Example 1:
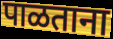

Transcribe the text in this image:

पाळताना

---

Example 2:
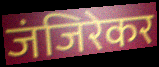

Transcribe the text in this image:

जंजिरेकर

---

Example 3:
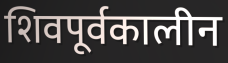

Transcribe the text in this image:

शिवपूर्वकालीन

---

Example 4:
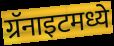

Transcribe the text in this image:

ग्रॅनाइटमध्ये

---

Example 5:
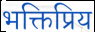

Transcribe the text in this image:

भक्तिप्रिय